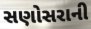
સણોસરાની